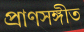
প্রাণসঙ্গীত